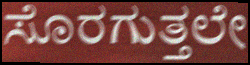
ಸೊರಗುತ್ತಲೇ